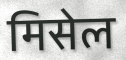
मिसेल